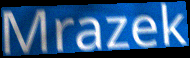
Mrazek